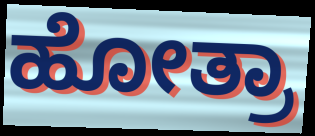
ಹೋತ್ರಾ